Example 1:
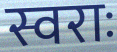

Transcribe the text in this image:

स्वराः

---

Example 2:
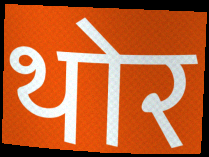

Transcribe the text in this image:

थोर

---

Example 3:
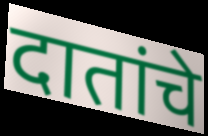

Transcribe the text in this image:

दातांचे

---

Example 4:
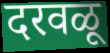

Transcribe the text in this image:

दरवळू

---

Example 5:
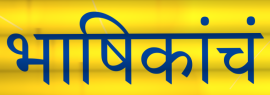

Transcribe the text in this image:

भाषिकांचं